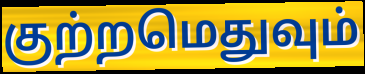
குற்றமெதுவும்